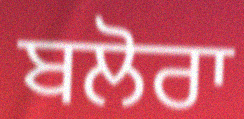
ਬਲੋਰਾ